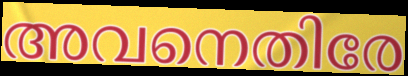
അവനെതിരേ